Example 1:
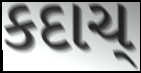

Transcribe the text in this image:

કદાચ્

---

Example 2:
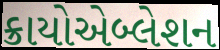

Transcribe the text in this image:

ક્રાયોએબ્લેશન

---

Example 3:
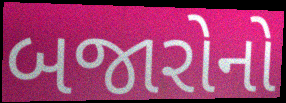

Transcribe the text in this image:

બજારોનો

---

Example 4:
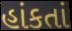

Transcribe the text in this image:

હાંકતાં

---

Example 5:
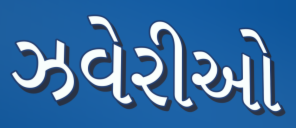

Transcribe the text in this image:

ઝવેરીઓ